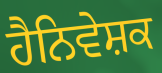
ਹੈਨਿਵੇਸ਼ਕ